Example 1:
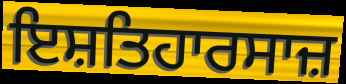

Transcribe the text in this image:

ਇਸ਼ਤਿਹਾਰਸਾਜ਼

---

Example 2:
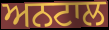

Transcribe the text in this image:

ਅਨਟਾਲ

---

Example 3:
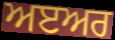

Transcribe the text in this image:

ਅੲਅਰ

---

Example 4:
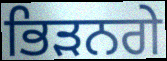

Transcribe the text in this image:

ਭਿੜਨਗੇ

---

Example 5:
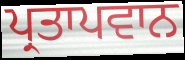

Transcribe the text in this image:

ਪ੍ਰਤਾਪਵਾਨ